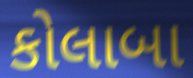
કોલાબા